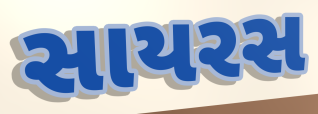
સાયરસ